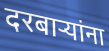
दरबाऱ्यांना